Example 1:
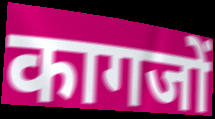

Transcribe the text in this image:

कागजों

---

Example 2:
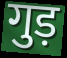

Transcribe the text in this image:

गुड़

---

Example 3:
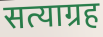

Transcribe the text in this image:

सत्याग्रह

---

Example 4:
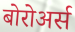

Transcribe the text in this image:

बोरोअर्स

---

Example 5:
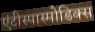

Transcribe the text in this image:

एंटीस्पास्मोडिक्स